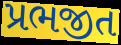
પ્રભજીત